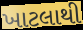
ખાટલાથી